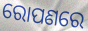
ରୋପଣରେ